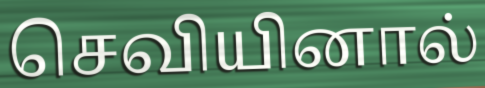
செவியினால்